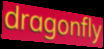
dragonfly